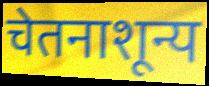
चेतनाशून्य